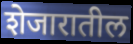
शेजारातील